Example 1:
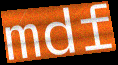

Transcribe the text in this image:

mdf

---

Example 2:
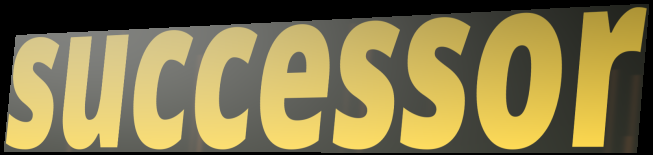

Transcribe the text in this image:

successor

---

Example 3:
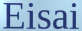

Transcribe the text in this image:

Eisai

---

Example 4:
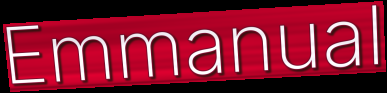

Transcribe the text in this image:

Emmanual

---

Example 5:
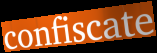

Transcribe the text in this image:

confiscate